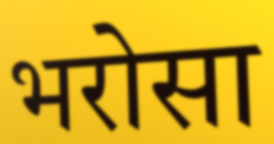
भरोसा